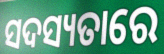
ସଦସ୍ୟତାରେ